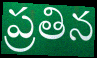
ప్రతిన